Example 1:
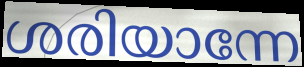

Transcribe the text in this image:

ശരിയാന്നേ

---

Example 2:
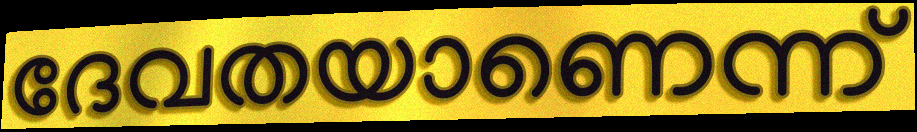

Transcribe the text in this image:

ദേവതയാണെന്ന്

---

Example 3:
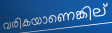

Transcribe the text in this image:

വരികയാണെങ്കില്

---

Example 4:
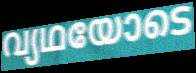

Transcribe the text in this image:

വ്യഥയോടെ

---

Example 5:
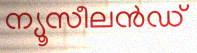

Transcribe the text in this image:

ന്യൂസീലൻഡ്